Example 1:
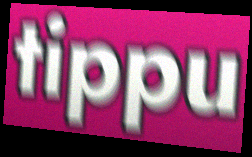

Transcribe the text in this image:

tippu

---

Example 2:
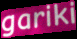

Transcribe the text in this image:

gariki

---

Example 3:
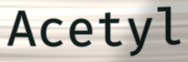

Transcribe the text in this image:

Acetyl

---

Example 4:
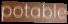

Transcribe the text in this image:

potable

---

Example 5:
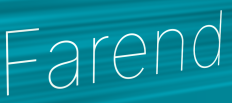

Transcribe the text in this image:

Farend